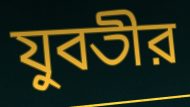
যুবতীর